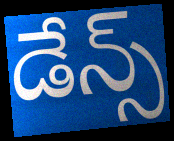
డేన్స్